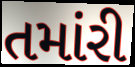
તમાંરી